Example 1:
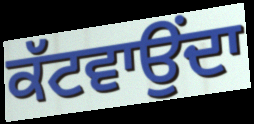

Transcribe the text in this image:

ਕੱਟਵਾਉਂਦਾ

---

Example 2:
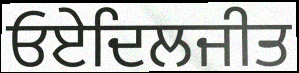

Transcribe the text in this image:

ਓਏਦਿਲਜੀਤ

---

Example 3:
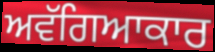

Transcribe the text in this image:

ਅਵੱਗਿਆਕਾਰ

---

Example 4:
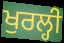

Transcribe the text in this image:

ਖੁਰਲ੍ਹੀ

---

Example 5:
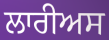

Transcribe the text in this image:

ਲਾਰੀਅਸ